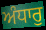
ਅੰਧਾਰੁ